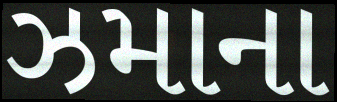
ઝમાના